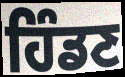
ਹਿੰਡਣ